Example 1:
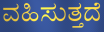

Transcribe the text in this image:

ವಹಿಸುತ್ತದೆ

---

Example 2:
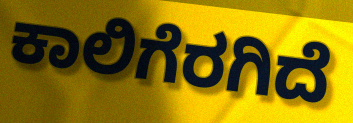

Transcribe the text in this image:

ಕಾಲಿಗೆರಗಿದೆ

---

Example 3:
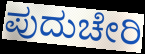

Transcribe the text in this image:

ಪುದುಚೇರಿ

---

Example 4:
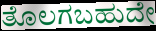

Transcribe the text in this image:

ತೊಲಗಬಹುದೇ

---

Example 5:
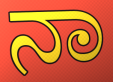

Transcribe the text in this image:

ನಾ